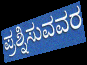
ಪ್ರಶ್ನಿಸುವವರ